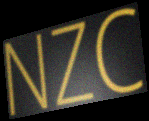
NZC